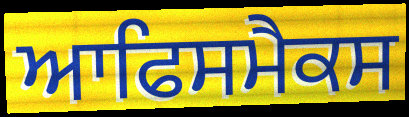
ਆਫਿਸਮੈਕਸ